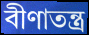
বীণাতন্ত্র